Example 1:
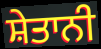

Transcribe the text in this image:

ਸ਼ੇਤਾਨੀ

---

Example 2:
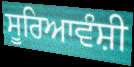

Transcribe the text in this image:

ਸੂਰਿਆਵੰਸ਼ੀ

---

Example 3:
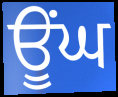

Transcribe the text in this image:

ਊਂਘ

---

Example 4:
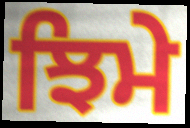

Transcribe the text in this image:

ਝਿਮੇ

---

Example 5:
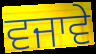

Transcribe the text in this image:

ਵਜਾਵੇ